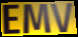
EMV